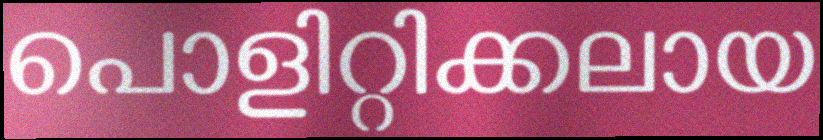
പൊളിറ്റിക്കലായ